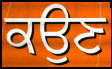
ਕਉਣ